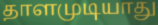
தாளமுடியாது